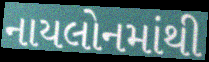
નાયલોનમાંથી